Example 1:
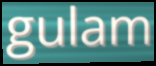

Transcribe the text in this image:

gulam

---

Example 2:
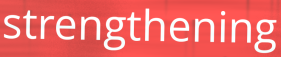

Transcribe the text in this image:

strengthening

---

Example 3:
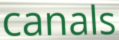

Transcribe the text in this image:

canals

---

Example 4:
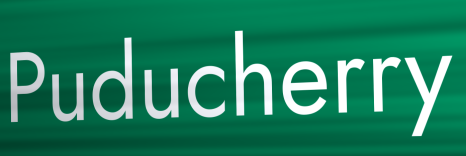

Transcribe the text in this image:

Puducherry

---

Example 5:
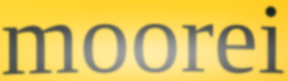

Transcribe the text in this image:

moorei